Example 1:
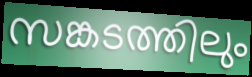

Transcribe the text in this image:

സങ്കടത്തിലും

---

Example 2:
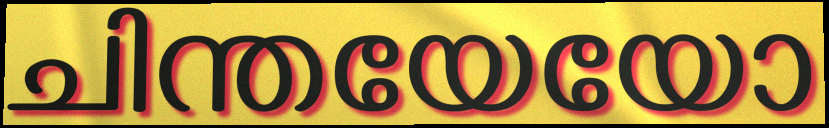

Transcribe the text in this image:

ചിന്തയേയോ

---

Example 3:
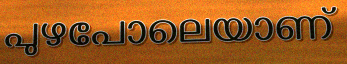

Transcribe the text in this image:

പുഴപോലെയാണ്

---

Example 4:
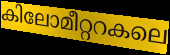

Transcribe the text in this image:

കിലോമീറ്ററകലെ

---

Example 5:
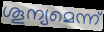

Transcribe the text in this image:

ശൂന്യമെന്ന്